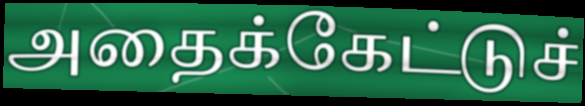
அதைக்கேட்டுச்